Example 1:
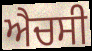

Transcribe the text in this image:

ਐਚਸੀ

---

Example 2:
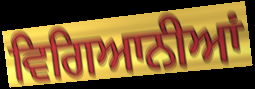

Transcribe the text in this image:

ਵਿਗਿਆਨੀਆਂ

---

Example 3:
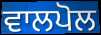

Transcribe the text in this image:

ਵਾਲਪੋਲ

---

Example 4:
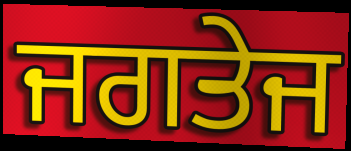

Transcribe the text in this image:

ਜਗਤੇਜ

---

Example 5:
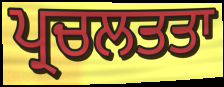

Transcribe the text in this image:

ਪ੍ਰਚਲਤਤਾ